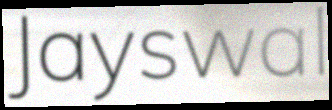
Jayswal